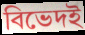
বিভেদই